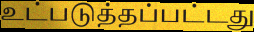
உட்படுத்தப்பட்டது